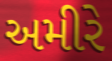
અમીરે